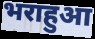
भराहुआ